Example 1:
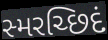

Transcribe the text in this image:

સ્મરચ્છિદં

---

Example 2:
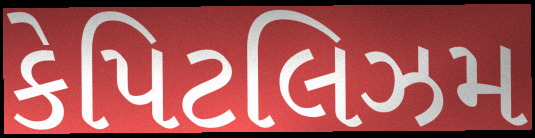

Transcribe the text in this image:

કેપિટલિઝમ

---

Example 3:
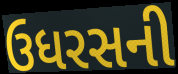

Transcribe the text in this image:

ઉધરસની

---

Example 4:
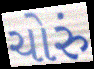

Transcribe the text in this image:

ચોરું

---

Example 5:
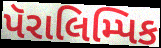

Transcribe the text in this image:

પૅરાલિમ્પિક